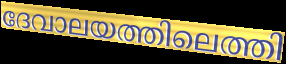
ദേവാലയത്തിലെത്തി